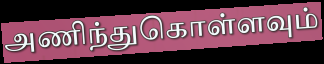
அணிந்துகொள்ளவும்